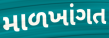
માળખાંગત